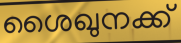
ശൈഖുനക്ക്